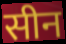
सीन